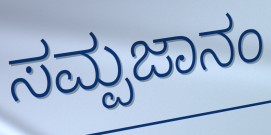
ಸಮ್ಪಜಾನಂ